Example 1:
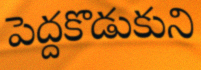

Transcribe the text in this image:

పెద్దకొడుకుని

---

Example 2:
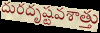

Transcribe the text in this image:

దురదృష్టవశాత్తు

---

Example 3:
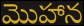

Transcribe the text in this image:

మొహాన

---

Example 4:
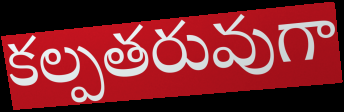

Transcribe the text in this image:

కల్పతరువుగా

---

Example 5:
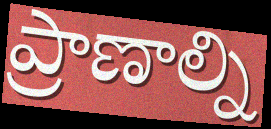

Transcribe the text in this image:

ప్రాణాల్ని